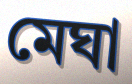
মেঘা